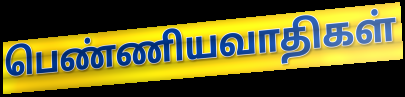
பெண்ணியவாதிகள்